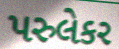
પરુલેકર